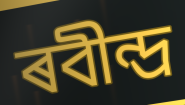
ৰবীন্দ্ৰ